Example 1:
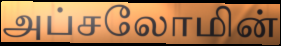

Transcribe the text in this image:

அப்சலோமின்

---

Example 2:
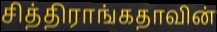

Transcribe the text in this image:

சித்திராங்கதாவின்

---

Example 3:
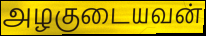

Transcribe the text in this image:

அழகுடையவன்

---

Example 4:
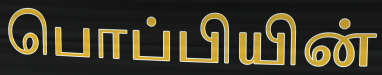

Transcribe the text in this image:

பொப்பியின்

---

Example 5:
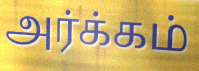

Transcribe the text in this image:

அர்க்கம்